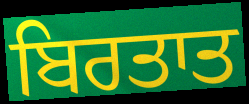
ਬਿਰਤਾਤ